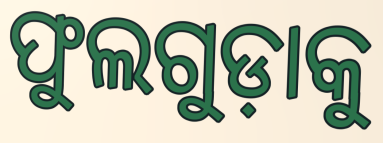
ଫୁଲଗୁଡ଼ାକୁ